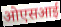
ओएसआई